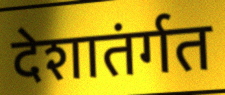
देशातंर्गत